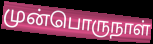
முன்பொருநாள்